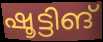
ഷൂട്ടിങ്